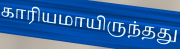
காரியமாயிருந்தது